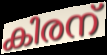
കിരന്